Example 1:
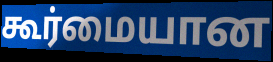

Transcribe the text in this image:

கூர்மையான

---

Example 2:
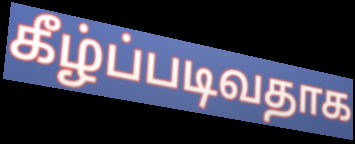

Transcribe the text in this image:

கீழ்ப்படிவதாக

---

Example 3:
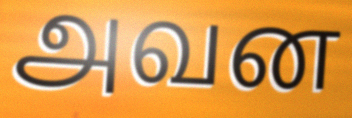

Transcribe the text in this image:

அவன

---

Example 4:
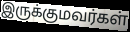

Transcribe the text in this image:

இருக்குமவர்கள்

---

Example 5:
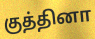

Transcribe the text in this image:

குத்தினா